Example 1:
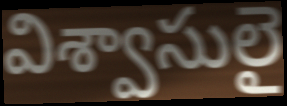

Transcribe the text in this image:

విశ్వాసులై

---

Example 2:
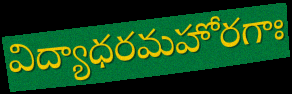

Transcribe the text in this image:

విద్యాధరమహోరగాః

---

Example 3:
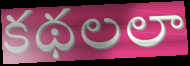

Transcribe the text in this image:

కథలలా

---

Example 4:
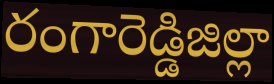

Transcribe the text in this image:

రంగారెడ్డిజిల్లా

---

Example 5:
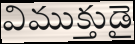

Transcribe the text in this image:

విముక్తుడై